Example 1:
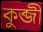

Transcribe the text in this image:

কুব্জী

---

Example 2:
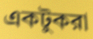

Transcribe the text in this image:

একটুকরা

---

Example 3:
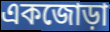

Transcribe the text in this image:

একজোড়া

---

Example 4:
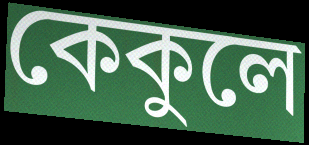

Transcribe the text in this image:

কেকুলে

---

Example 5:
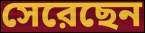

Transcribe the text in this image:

সেরেছেন